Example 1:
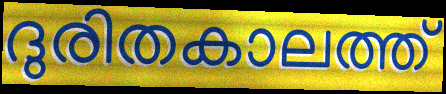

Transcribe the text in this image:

ദുരിതകാലത്ത്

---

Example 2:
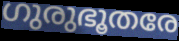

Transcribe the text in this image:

ഗുരുഭൂതരേ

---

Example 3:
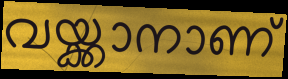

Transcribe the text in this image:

വയ്ക്കാനാണ്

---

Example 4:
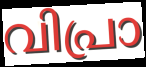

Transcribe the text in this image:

വിപ്രാ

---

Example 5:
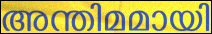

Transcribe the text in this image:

അന്തിമമായി